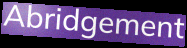
Abridgement